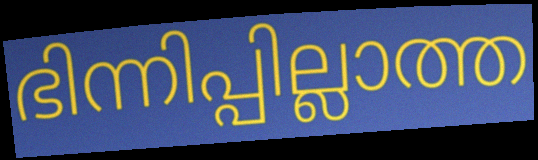
ഭിന്നിപ്പില്ലാത്ത